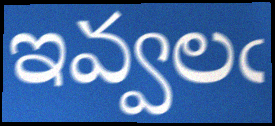
ఇవ్వలఁ